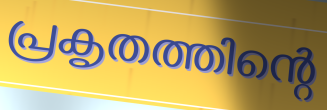
പ്രകൃതത്തിന്റെ